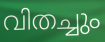
വിതച്ചും